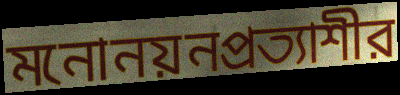
মনোনয়নপ্রত্যাশীর